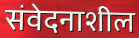
संवेदनाशील